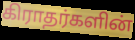
கிராதர்களின்